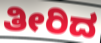
ತೀರಿದ